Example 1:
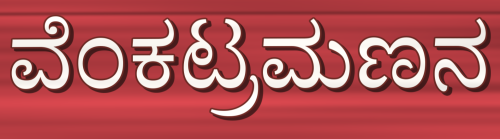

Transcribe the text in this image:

ವೆಂಕಟ್ರಮಣನ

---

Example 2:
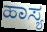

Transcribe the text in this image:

ಹಾಸ್ಯ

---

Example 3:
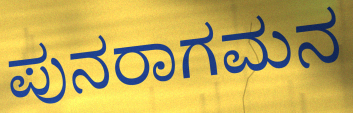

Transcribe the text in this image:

ಪುನರಾಗಮನ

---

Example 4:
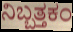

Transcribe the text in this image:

ನಿಬ್ಬತ್ತಕಂ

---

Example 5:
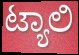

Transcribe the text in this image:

ಟ್ಯಾಲಿ